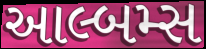
આલ્બમ્સ